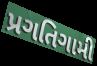
પ્રગતિગામી